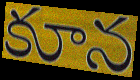
కూన